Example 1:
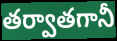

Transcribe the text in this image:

తర్వాతగానీ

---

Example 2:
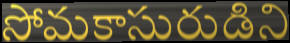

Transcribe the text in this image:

సోమకాసురుడిని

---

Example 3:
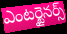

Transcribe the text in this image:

ఎంటర్టైనర్స్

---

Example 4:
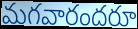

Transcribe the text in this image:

మగవారందరూ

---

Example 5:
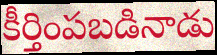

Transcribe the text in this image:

కీర్తింపబడినాడు